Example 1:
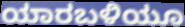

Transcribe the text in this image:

ಯಾರಬಳಿಯೂ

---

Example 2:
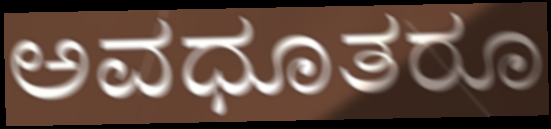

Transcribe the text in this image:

ಅವಧೂತರೂ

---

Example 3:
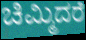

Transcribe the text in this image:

ಚಿಮ್ಮಿದರೆ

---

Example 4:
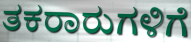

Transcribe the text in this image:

ತಕರಾರುಗಳಿಗೆ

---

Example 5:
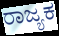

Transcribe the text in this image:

ರಾಜ್ಯಕ